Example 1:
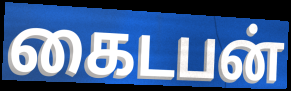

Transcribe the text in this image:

கைடபன்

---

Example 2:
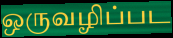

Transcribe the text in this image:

ஒருவழிப்பட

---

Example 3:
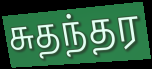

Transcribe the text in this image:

சுதந்தர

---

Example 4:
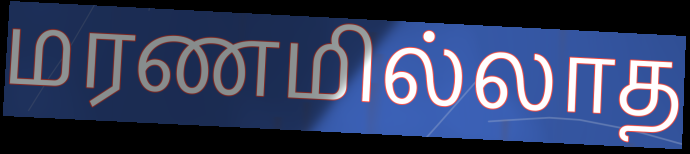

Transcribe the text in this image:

மரணமில்லாத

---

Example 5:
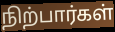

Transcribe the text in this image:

நிற்பார்கள்